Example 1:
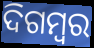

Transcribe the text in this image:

ଦିଗମ୍ୱର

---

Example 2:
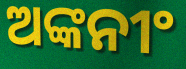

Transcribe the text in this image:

ଅଙ୍କନୀଂ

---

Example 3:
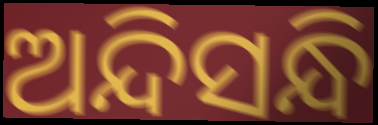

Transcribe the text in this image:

ଅନ୍ଦିସନ୍ଧି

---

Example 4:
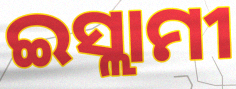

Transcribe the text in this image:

ଇସ୍ଲାମୀ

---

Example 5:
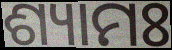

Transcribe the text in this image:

ଶ୍ୟାମଃ